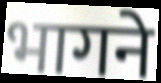
भागने